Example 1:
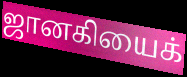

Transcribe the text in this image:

ஜானகியைக்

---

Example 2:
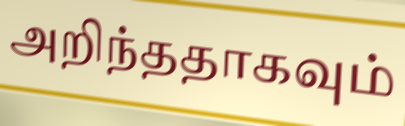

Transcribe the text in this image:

அறிந்ததாகவும்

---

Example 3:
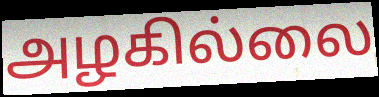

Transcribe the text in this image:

அழகில்லை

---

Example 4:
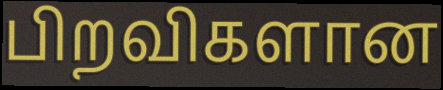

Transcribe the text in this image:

பிறவிகளான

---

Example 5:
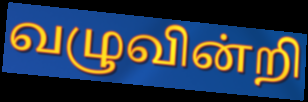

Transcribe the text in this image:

வழுவின்றி